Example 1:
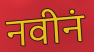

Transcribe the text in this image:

नवीनं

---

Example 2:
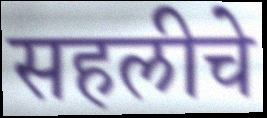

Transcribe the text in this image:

सहलीचे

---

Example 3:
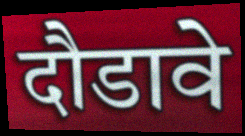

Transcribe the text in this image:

दौडावे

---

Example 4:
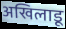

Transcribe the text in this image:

अखिलाडू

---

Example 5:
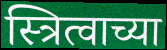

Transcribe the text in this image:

स्त्रित्वाच्या